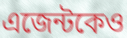
এজেন্টকেও